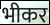
भीकर